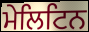
ਮੇਲਿਟਿਨ